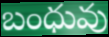
బంధువు